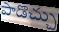
పాడొచ్చు